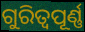
ଗୁରିତ୍ୱପୂର୍ଣ୍ଣ